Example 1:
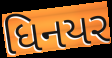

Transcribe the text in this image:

ધિનયર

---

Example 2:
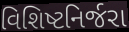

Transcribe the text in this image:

વિશિષ્ટનિર્જરા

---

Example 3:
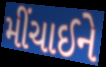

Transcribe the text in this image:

મીંચાઈને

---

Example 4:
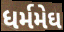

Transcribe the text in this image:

ધર્મમેઘ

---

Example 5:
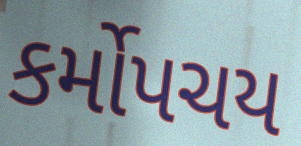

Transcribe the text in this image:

કર્મોપચય